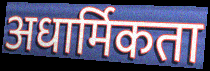
अधार्मिकता